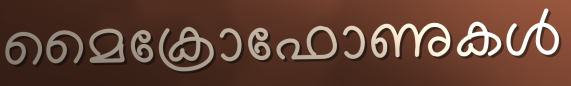
മൈക്രോഫോണുകൾ